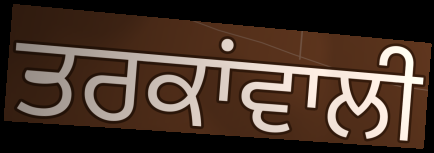
ਤਰਕਾਂਵਾਲੀ